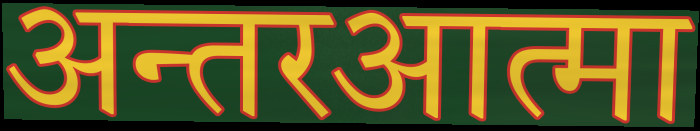
अन्तरआत्मा